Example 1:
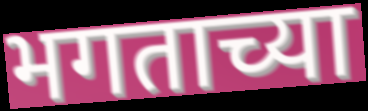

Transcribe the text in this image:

भगताच्या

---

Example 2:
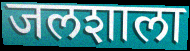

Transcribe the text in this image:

जलशाला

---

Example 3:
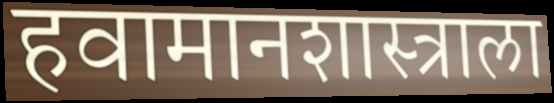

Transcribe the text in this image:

हवामानशास्त्राला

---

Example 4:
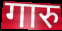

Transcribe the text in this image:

गारु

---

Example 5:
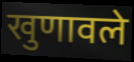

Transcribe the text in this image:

खुणावले